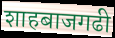
शाहबाजगढी